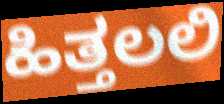
ಹಿತ್ತಲಲಿ